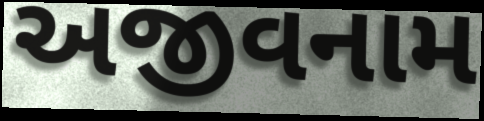
અજીવનામ